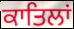
ਕਾਤਿਲਾਂ